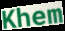
Khem